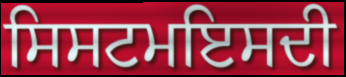
ਸਿਸਟਮਇਸਦੀ